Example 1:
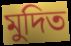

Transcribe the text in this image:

মুদিত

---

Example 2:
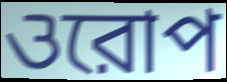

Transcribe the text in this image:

ওরোপ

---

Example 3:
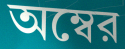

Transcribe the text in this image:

অম্বের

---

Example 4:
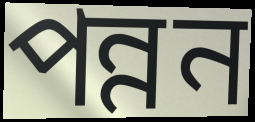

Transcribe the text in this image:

পন্নন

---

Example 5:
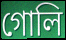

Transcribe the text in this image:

গোলি